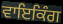
ਵਾਇਕਿੰਗ